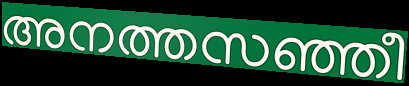
അനത്തസഞ്ഞീ